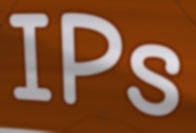
IPs